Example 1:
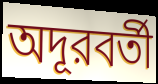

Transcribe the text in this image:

অদূরবর্তী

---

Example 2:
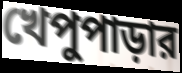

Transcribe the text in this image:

খেপুপাড়ার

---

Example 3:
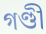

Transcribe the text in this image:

গণ্ডী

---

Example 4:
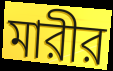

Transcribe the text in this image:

মারীর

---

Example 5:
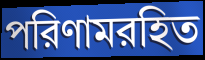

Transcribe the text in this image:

পরিণামরহিত